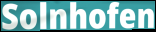
Solnhofen